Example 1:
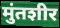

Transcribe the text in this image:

मुंतशीर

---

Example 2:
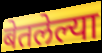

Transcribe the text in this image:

बेतलेल्या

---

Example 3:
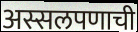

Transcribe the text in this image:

अस्सलपणाची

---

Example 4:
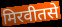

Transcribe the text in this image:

मिरवीतसे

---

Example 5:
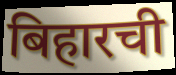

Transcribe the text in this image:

बिहारची